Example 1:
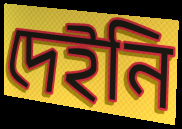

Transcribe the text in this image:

দেইনি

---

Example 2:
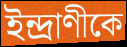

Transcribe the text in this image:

ইন্দ্রাণীকে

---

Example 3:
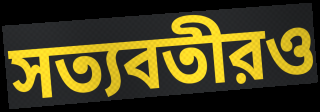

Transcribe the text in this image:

সত্যবতীরও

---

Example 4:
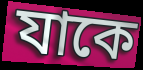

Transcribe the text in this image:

যাকে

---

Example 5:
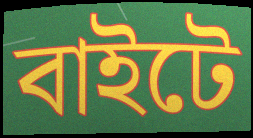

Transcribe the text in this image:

বাইটে